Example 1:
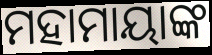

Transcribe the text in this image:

ମହାମାୟାଙ୍କ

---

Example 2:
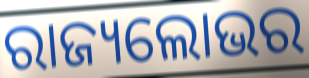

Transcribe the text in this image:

ରାଜ୍ୟଲୋଭର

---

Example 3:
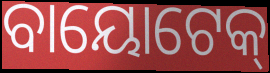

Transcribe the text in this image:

ବାୟୋଟେକ୍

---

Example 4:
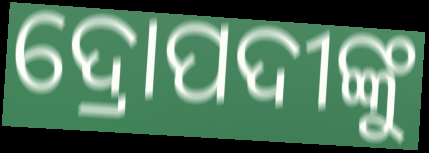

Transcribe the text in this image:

ଦ୍ରୋପଦୀଙ୍କୁ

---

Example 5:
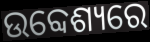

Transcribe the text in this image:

ଉବ୍ଦେଶ୍ୟରେ